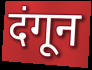
दंगून